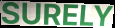
SURELY